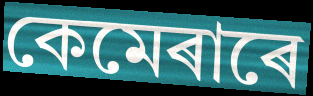
কেমেৰাৰে